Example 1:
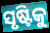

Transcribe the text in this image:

ସୃଷ୍ଟିକୁ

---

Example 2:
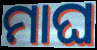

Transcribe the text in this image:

ମାଘ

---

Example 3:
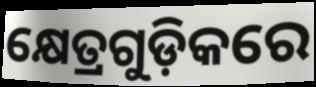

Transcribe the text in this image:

କ୍ଷେତ୍ରଗୁଡ଼ିକରେ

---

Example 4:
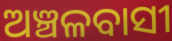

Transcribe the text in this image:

ଅଞ୍ଚଳବାସୀ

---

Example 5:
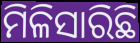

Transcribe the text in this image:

ମିଳିସାରିଛି